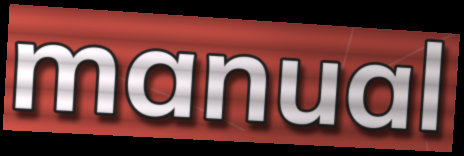
manual